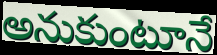
అనుకుంటూనే